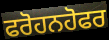
ਫਰੋਹਨਹੋਫਰ